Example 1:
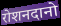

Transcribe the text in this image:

रोशनदानो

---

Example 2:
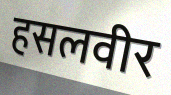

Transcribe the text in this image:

हसलवीर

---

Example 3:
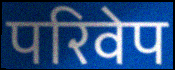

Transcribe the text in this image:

परिवेप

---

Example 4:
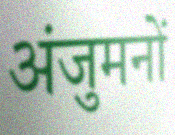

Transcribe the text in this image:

अंजुमनों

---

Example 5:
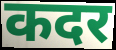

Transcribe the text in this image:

कदर